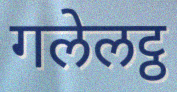
गलेलट्ठ